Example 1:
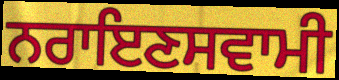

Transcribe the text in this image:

ਨਰਾਇਣਸਵਾਮੀ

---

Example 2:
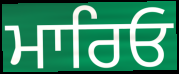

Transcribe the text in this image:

ਮਾਰਿਓ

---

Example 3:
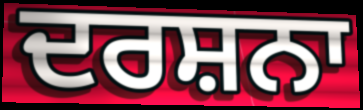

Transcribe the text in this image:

ਦਰਸ਼ਨਾ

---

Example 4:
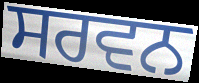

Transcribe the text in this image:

ਸਰਵਨ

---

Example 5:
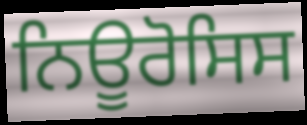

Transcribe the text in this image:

ਨਿਊਰੋਸਿਸ